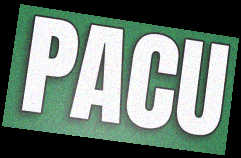
PACU